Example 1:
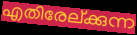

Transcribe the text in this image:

എതിരേല്ക്കുന്ന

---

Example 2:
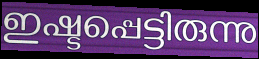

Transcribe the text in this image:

ഇഷ്ടപ്പെട്ടിരുന്നു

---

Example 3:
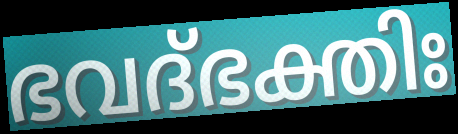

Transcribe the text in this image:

ഭവദ്ഭക്തിഃ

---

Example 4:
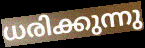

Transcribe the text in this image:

ധരിക്കുന്നു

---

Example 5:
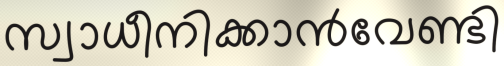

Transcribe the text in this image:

സ്വാധീനിക്കാൻവേണ്ടി